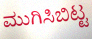
ಮುಗಿಸಿಬಿಟ್ಟ